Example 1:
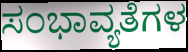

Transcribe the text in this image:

ಸಂಭಾವ್ಯತೆಗಳ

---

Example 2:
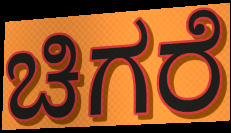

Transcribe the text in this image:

ಚಿಗರೆ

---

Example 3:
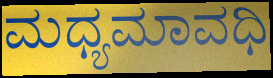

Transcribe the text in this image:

ಮಧ್ಯಮಾವಧಿ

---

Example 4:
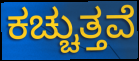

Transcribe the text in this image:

ಕಚ್ಚುತ್ತವೆ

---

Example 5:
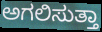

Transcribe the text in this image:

ಅಗಲಿಸುತ್ತಾ